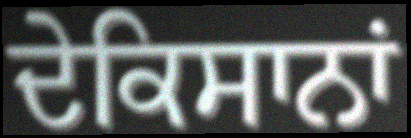
ਦੇਕਿਸਾਨਾਂ